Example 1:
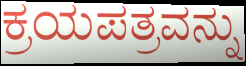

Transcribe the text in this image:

ಕ್ರಯಪತ್ರವನ್ನು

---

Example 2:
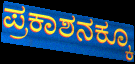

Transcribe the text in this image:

ಪ್ರಕಾಶನಕ್ಕೂ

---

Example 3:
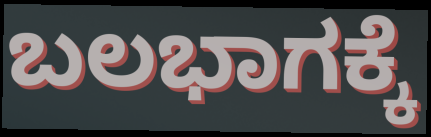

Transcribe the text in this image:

ಬಲಭಾಗಕ್ಕೆ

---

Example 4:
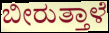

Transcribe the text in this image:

ಬೀರುತ್ತಾಳೆ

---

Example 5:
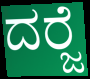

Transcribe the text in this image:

ದರ‍್ಜೆ